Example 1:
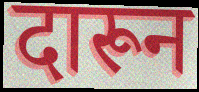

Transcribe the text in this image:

दारून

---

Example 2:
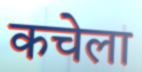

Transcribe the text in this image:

कचेला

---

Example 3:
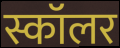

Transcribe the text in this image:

स्कॉलर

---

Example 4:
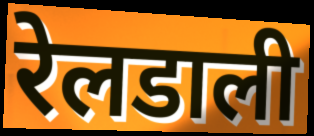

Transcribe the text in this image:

रेलडाली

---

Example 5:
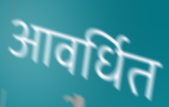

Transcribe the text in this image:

आवर्धित